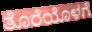
ತೊರೆಯೊಳಗೆ